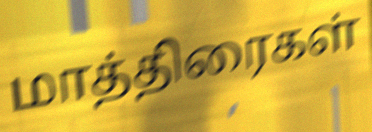
மாத்திரைகள்